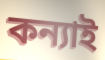
কন্যাই